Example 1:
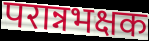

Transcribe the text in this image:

परान्नभक्षक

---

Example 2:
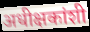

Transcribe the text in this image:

अधीक्षकांशी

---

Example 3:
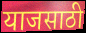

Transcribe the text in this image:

याजसाठी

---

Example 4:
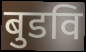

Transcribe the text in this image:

बुडवि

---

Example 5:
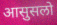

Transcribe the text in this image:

आसुसलो